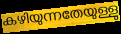
കഴിയുന്നതേയുള്ളു